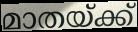
മാതയ്ക്ക്